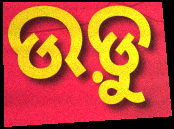
ଉଡ଼ୁ